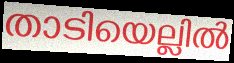
താടിയെല്ലിൽ